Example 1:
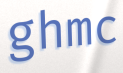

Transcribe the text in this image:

ghmc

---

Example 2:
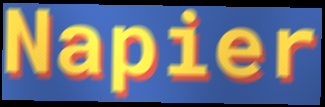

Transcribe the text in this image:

Napier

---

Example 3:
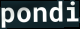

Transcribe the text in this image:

pondi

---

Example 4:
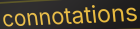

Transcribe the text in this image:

connotations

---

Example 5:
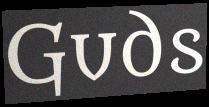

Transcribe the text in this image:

Guds